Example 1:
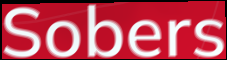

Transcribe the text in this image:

Sobers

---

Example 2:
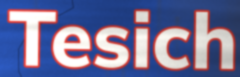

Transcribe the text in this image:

Tesich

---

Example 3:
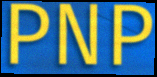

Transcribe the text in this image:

PNP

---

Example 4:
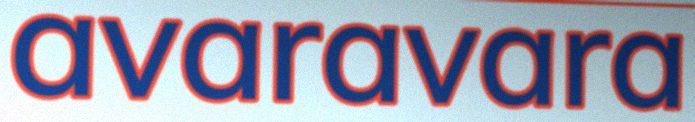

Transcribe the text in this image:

avaravara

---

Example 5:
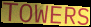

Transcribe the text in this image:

TOWERS